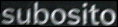
subosito